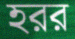
হরর